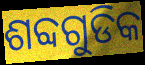
ଶବ୍ଦଗୁଡିକ